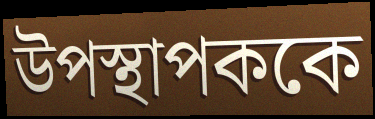
উপস্থাপককে